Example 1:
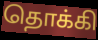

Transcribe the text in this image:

தொக்கி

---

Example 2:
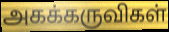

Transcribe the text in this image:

அகக்கருவிகள்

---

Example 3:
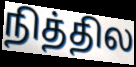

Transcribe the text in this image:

நித்தில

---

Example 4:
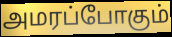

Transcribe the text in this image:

அமரப்போகும்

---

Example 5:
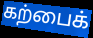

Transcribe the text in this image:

கற்பைக்